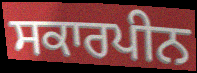
ਸਕਾਰਪੀਨ